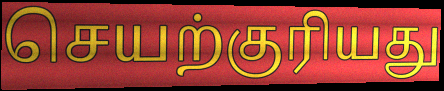
செயற்குரியது